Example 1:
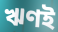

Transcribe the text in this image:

ঋণই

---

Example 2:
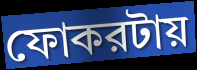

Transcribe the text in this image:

ফোকরটায়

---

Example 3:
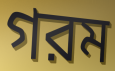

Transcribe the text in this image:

গরম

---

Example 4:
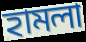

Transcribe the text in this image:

হামলা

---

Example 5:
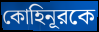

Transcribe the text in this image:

কোহিনূরকে